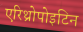
एरिथ्रोपोइटिन